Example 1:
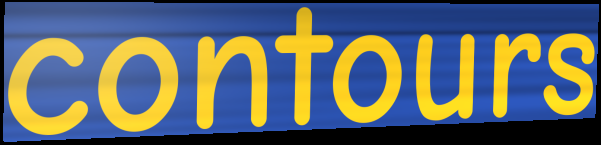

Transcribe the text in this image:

contours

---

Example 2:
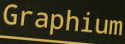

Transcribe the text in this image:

Graphium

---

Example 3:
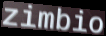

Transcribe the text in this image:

zimbio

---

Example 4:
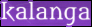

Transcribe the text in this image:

kalanga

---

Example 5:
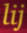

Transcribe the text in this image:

lij